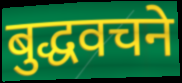
बुद्धवचने